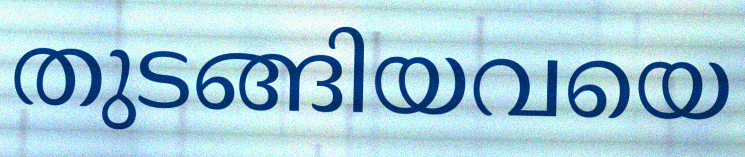
തുടങ്ങിയവയെ